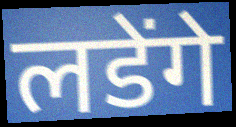
लडेंगे